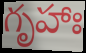
గృహాః